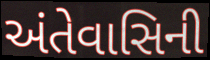
અંતેવાસિની